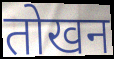
तोखन